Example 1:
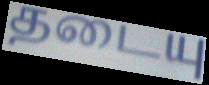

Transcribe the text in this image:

தடையு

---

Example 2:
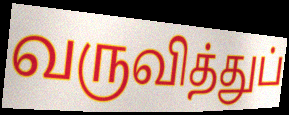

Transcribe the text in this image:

வருவித்துப்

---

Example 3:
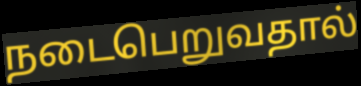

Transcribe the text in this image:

நடைபெறுவதால்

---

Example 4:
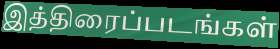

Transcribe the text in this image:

இத்திரைப்படங்கள்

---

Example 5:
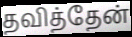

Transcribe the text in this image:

தவித்தேன்